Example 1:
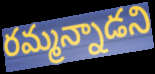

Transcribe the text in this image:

రమ్మన్నాడని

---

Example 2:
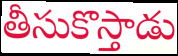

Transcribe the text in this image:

తీసుకొస్తాడు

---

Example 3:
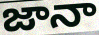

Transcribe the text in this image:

జానా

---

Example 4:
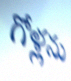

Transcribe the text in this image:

గోళ్లను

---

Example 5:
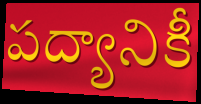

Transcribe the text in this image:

పద్యానికీ